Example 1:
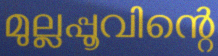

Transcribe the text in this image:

മുല്ലപ്പൂവിന്റെ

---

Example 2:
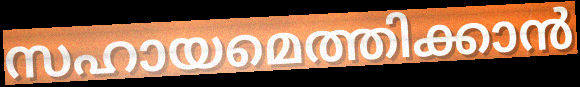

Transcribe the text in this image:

സഹായമെത്തിക്കാൻ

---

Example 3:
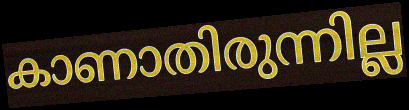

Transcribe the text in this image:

കാണാതിരുന്നില്ല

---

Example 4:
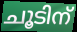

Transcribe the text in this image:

ചൂടിന്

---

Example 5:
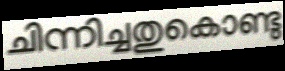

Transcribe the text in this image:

ചിന്നിച്ചതുകൊണ്ടു